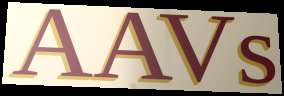
AAVs